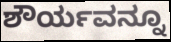
ಶೌರ್ಯವನ್ನೂ